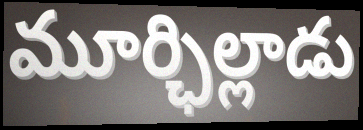
మూర్ఛిల్లాడు